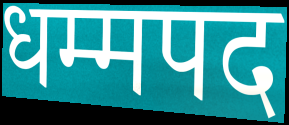
धम्मपद